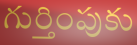
గుర్తింపుకు